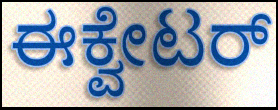
ಈಕ್ವೇಟರ್